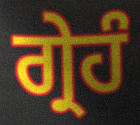
ਗ੍ਰੇਹੰ